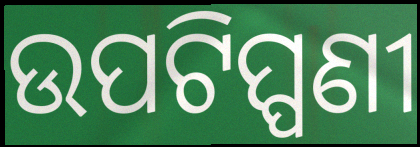
ଉପଟିପ୍ପଣୀ